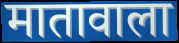
मातावाला